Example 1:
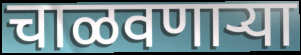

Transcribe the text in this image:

चाळवणाऱ्या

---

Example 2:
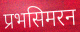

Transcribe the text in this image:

प्रभसिमरन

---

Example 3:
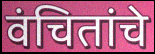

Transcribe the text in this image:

वंचितांचे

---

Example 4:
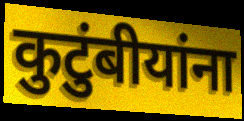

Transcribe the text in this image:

कुटुंबीयांना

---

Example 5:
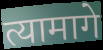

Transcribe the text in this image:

त्यामागे